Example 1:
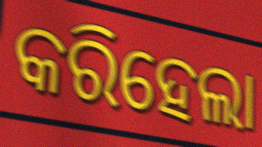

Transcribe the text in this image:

କରିହେଲା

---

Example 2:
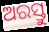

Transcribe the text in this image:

ଅରସ୍ତୁ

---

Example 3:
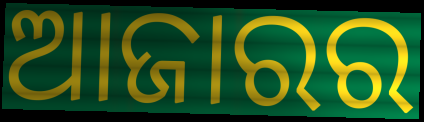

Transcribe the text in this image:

ଆଜାରର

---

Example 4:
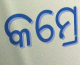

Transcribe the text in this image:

କମ୍ରେ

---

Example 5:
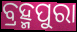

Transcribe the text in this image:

ବ୍ରହ୍ମପୁରା